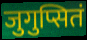
जुगुप्सितं